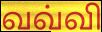
வவ்வி